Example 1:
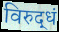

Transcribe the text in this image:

विरुद्धं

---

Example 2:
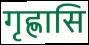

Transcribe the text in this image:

गृह्णासि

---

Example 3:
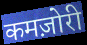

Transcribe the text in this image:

कमज़ोरी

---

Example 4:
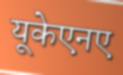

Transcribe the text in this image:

यूकेएनए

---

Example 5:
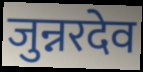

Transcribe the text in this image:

जुन्नरदेव